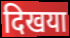
दिखया